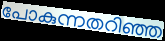
പോകുന്നതറിഞ്ഞ